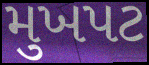
મુખપટ